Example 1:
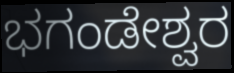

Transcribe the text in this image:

ಭಗಂಡೇಶ್ವರ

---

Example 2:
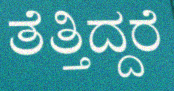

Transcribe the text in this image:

ತೆತ್ತಿದ್ದರೆ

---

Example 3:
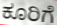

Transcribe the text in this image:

ಕೂರಿಗೆ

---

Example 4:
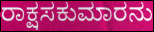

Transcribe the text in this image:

ರಾಕ್ಷಸಕುಮಾರನು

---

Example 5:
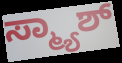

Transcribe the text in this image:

ಸ್ಮ್ಯಾಶ್